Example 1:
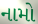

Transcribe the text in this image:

નામો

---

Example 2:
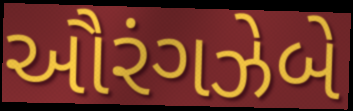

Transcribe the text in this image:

ઔરંગઝેબે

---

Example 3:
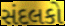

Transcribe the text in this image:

સંદલકો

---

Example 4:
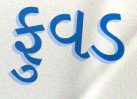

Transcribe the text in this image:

ફુવડ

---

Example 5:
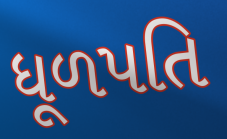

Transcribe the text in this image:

ધૂળપતિ